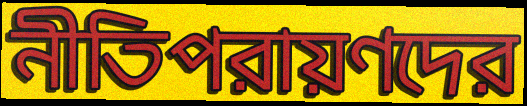
নীতিপরায়ণদের